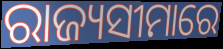
ରାଜ୍ୟସୀମାରେ